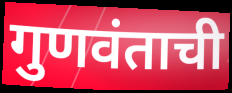
गुणवंताची